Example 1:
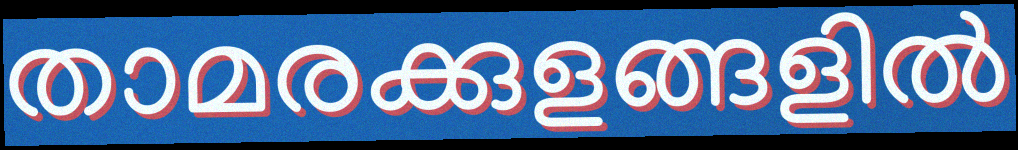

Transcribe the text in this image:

താമരക്കുളങ്ങളിൽ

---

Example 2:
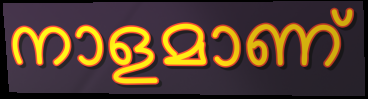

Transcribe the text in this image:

നാളമാണ്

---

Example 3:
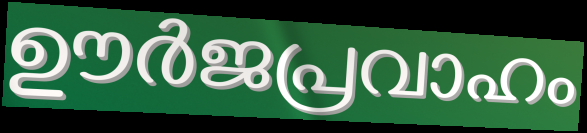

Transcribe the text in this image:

ഊർജപ്രവാഹം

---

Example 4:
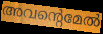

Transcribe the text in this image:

അവന്റെമേൽ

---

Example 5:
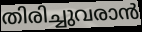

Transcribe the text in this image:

തിരിച്ചുവരാൻ